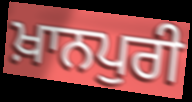
ਖ਼ਾਨਪੁਰੀ